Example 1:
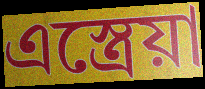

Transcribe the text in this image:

এস্ত্রেয়া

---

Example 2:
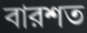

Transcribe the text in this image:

বারশত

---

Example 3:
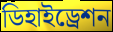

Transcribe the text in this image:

ডিহাইড্রেশন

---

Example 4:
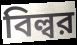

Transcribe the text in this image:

বিল্বর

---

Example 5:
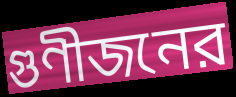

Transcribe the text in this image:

গুণীজনের